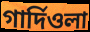
গার্দিওলা